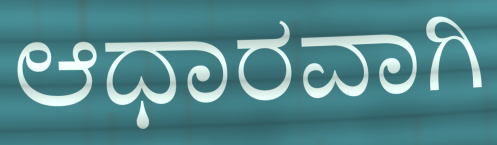
ಆಧಾರವಾಗಿ